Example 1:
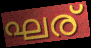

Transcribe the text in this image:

ഘര്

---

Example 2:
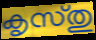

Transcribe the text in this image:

കൃസ്തു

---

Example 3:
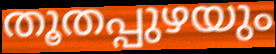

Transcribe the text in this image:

തൂതപ്പുഴയും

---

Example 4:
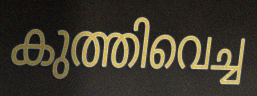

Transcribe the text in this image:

കുത്തിവെച്ച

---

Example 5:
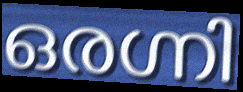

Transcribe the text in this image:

ഒരഗ്നി